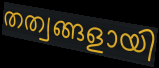
തത്വങ്ങളായി